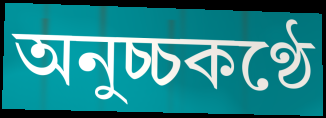
অনুচ্চকণ্ঠে